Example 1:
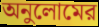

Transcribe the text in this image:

অনুলোমের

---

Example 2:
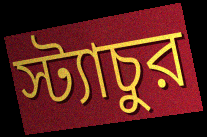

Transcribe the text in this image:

স্ট্যাচুর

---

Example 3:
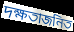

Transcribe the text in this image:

দক্ষতাজনিত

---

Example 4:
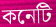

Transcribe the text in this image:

কনেটি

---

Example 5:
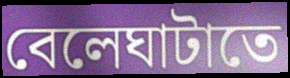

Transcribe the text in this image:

বেলেঘাটাতে